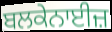
ਬਲਕੇਨਾਈਜ਼